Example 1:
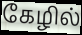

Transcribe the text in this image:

கேழில்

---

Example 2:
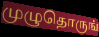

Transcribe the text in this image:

முழுதொருங்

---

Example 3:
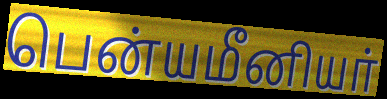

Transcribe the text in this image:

பென்யமீனியர்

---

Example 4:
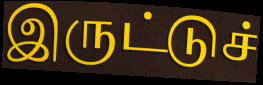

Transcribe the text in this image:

இருட்டுச்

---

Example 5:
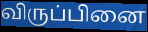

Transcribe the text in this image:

விருப்பினை